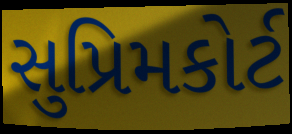
સુપ્રિમકોર્ટ